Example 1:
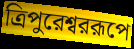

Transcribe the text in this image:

ত্রিপুরেশ্বররূপে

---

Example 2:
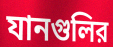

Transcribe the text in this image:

যানগুলির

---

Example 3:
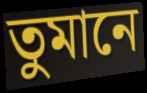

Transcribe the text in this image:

তুমানে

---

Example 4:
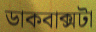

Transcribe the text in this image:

ডাকবাক্সটা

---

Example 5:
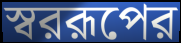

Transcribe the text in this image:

স্বররূপের